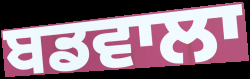
ਬਡਵਾਲਾ